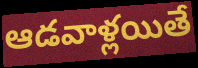
ఆడవాళ్లయితే